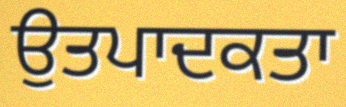
ਉਤਪਾਦਕਤਾ